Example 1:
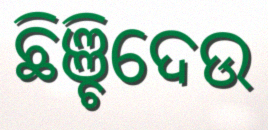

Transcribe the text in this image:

ଛିଞ୍ଚିଦେଉ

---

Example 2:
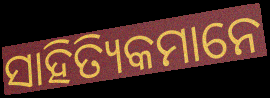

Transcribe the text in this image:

ସାହିତ୍ୟିକମାନେ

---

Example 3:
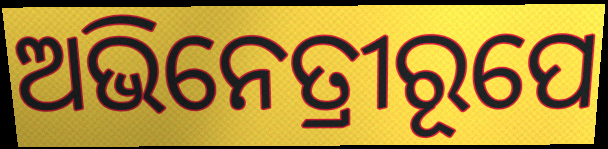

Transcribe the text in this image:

ଅଭିନେତ୍ରୀରୂପେ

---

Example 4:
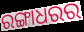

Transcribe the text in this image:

ରଙ୍ଗାଧରର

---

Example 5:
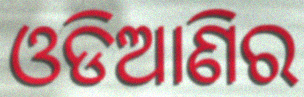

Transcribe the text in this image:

ଓଡିଆଣିର